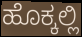
ಹೊಕ್ಕಲ್ಲಿ